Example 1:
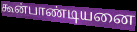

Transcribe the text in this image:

கூன்பாண்டியனை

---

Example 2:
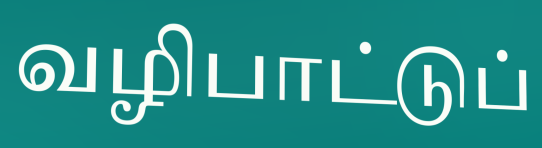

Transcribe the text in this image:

வழிபாட்டுப்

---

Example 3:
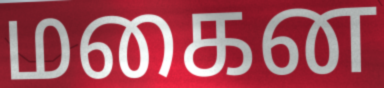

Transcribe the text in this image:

மகைன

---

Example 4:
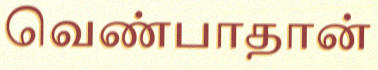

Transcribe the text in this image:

வெண்பாதான்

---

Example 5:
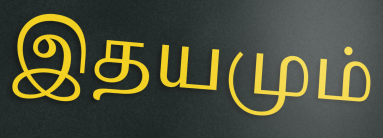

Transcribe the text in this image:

இதயமும்